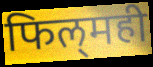
फिल्मही